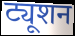
ट्यूशन